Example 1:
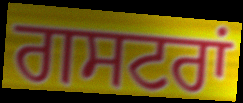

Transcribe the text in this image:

ਗਸਟਰਾਂ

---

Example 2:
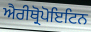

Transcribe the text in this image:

ਐਰੀਥ੍ਰੋਪੋਇਟਿਨ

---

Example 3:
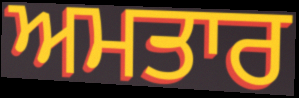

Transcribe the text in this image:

ਅਮਤਾਰ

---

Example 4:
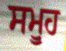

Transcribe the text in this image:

ਸਮੂਹ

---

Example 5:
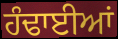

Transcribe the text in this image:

ਹੰਢਾਈਆਂ